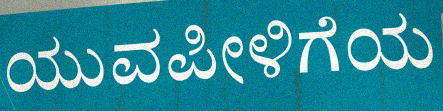
ಯುವಪೀಳಿಗೆಯ